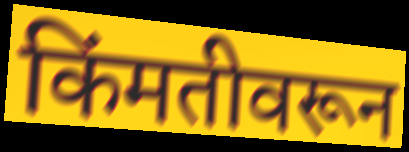
किंमतीवरून